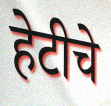
हेटीचे